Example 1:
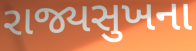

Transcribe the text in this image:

રાજ્યસુખના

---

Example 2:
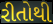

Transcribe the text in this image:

રીતોથી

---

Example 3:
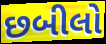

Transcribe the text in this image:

છબીલો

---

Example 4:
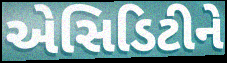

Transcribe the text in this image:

એસિડિટીને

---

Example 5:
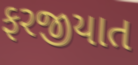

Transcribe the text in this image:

ફરજીયાત